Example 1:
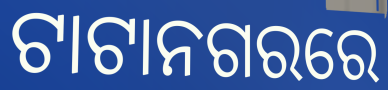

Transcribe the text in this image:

ଟାଟାନଗରରେ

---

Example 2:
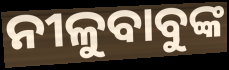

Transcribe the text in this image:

ନୀଳୁବାବୁଙ୍କ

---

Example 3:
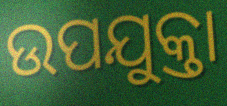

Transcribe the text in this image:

ଉପଯୁକ୍ତା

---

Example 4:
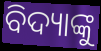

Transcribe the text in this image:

ବିଦ୍ୟାଙ୍କୁ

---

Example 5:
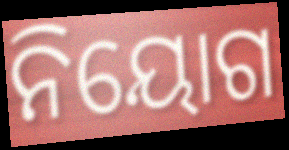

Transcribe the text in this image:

ନିୟୋଗ